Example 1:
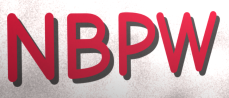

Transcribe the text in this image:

NBPW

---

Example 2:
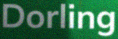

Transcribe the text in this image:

Dorling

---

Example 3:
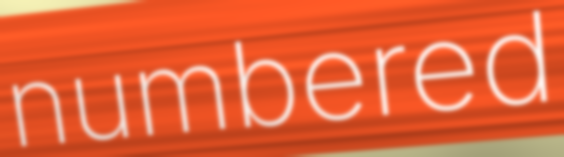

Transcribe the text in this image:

numbered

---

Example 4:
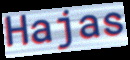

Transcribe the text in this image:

Hajas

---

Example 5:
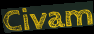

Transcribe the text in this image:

Civam